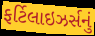
ફર્ટિલાઇઝર્સનું